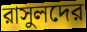
রাসুলদের